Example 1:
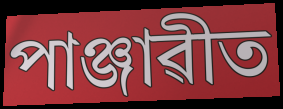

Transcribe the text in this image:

পাঞ্জাৱীত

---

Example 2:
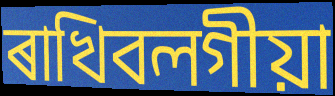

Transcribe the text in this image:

ৰাখিবলগীয়া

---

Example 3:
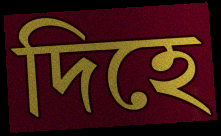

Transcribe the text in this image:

দিহে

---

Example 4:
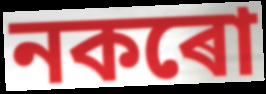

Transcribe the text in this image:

নকৰো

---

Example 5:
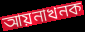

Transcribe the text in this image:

আয়নাখনক